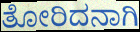
ತೋರಿದನಾಗಿ